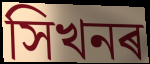
সিখনৰ